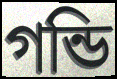
গন্ডি